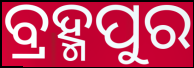
ବ୍ରହ୍ମପୁର